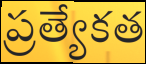
ప్రత్యేకత